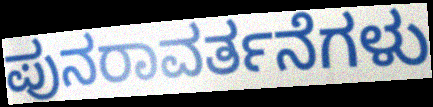
ಪುನರಾವರ್ತನೆಗಳು